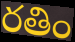
రతిం